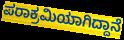
ಪರಾಕ್ರಮಿಯಾಗಿದ್ದಾನೆ